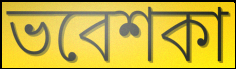
ভবেশকা